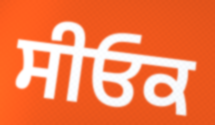
ਸੀਓਕ